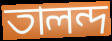
তালন্দ